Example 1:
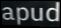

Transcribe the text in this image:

apud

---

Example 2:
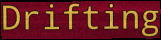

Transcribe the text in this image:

Drifting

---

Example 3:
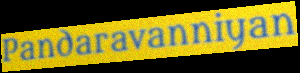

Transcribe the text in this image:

Pandaravanniyan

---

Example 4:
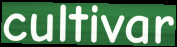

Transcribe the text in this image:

cultivar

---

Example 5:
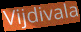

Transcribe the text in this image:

Vijdivala